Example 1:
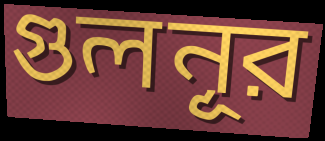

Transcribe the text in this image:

গুলনূর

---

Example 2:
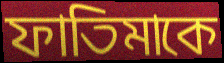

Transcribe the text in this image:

ফাতিমাকে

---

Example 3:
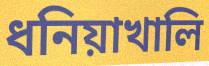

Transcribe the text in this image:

ধনিয়াখালি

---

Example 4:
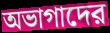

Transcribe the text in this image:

অভাগাদের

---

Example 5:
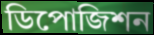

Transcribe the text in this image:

ডিপোজিশন